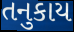
તનુકાય